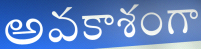
అవకాశంగా